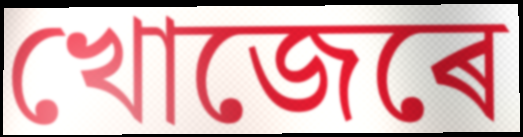
খোজেৰে